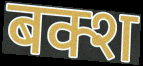
बक्श